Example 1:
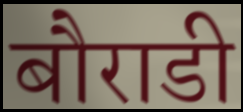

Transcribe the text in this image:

बौराडी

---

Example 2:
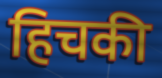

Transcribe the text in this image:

हिचकी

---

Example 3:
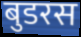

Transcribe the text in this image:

बुडरस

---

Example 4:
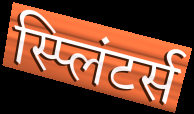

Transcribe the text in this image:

स्प्लिंटर्स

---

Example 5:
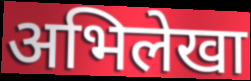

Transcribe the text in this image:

अभिलेखा